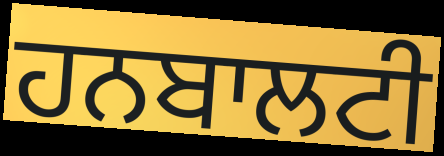
ਹਨਬਾਲਟੀ